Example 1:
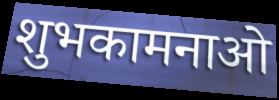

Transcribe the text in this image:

शुभकामनाओ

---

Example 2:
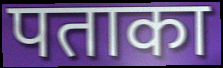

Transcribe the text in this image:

पताका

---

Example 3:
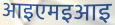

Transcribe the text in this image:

आइएमइआइ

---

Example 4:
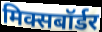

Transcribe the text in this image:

मिक्सबॉर्डर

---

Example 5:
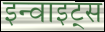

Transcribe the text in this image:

इन्वाइट्स